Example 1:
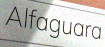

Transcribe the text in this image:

Alfaguara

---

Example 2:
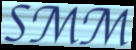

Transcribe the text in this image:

SMM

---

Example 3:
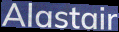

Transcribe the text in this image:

Alastair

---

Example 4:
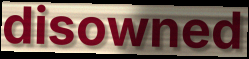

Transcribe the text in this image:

disowned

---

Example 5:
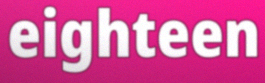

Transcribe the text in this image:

eighteen